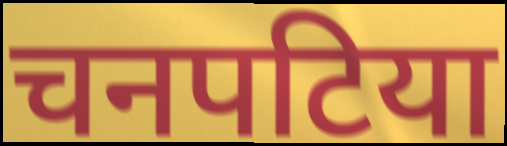
चनपटिया